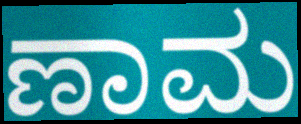
ಣಾಮ